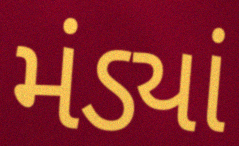
મંડ્યાં